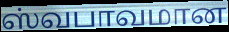
ஸ்வபாவமான